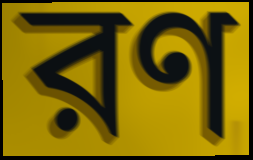
রণ